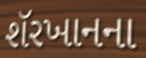
શૅરખાનના